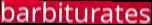
barbiturates